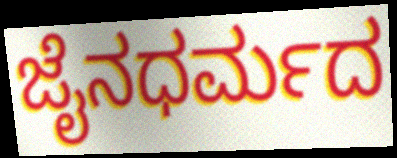
ಜೈನಧರ್ಮದ